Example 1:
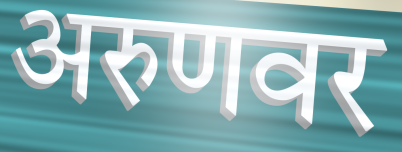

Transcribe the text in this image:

अरुणवर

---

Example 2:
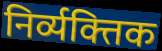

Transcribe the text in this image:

निर्व्यक्तिक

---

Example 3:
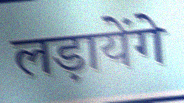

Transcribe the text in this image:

लड़ायेंगे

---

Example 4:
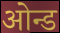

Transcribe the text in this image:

ओन्ड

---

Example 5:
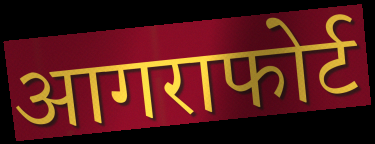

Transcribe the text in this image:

आगराफोर्ट